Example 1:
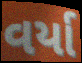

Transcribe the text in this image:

વર્યા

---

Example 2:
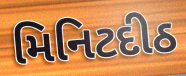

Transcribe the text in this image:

મિનિટદીઠ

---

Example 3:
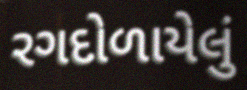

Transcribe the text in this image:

રગદોળાયેલું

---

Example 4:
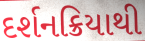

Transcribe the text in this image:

દર્શનક્રિયાથી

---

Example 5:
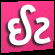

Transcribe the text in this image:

ઈટ